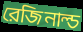
রেজিনাল্ড